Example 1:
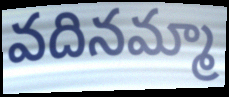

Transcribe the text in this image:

వదినమ్మా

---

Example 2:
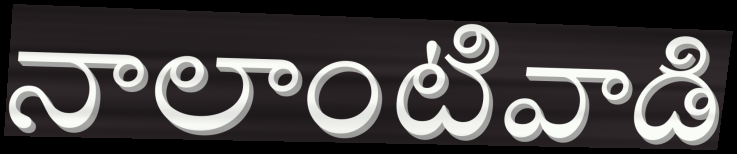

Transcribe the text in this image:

నాలాంటివాడి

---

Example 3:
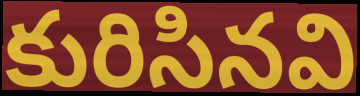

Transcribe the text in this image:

కురిసినవి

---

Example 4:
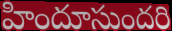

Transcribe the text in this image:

హిందూసుందరి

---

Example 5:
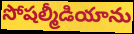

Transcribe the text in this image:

సోషల్మీడియాను